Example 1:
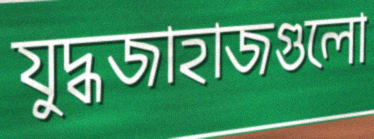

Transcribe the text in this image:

যুদ্ধজাহাজগুলো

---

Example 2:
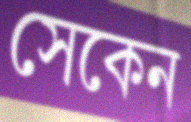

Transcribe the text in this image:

সেকেন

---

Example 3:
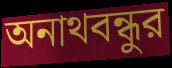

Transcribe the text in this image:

অনাথবন্ধুর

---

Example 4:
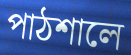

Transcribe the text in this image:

পাঠশালে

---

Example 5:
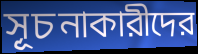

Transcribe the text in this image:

সূচনাকারীদের